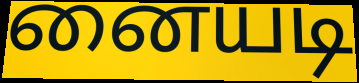
னையடி